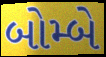
બોમ્બે